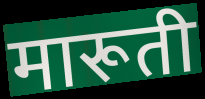
मारूती